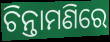
ଚିନ୍ତାମଣିରେ